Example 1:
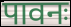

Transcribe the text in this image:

पावनः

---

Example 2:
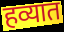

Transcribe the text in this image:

हव्‍यात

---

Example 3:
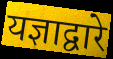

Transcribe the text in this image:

यज्ञाद्वारे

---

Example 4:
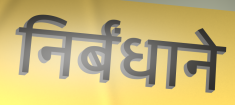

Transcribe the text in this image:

निर्बंधाने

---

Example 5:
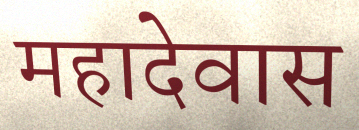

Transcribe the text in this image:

महादेवास